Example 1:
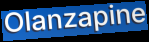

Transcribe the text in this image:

Olanzapine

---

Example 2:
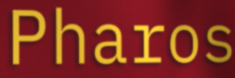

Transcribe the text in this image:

Pharos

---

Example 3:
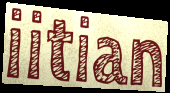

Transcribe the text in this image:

iitian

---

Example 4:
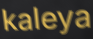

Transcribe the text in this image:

kaleya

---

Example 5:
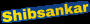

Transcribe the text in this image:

Shibsankar